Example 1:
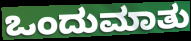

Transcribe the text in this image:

ಒಂದುಮಾತು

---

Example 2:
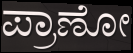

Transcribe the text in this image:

ಪ್ರಾಣೋ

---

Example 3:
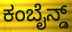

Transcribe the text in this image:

ಕಂಬೈನ್ಡ್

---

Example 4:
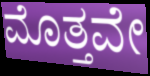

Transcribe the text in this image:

ಮೊತ್ತವೇ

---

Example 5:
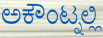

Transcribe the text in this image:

ಅಕೌಂಟ್ನಲ್ಲಿ